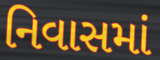
નિવાસમાં